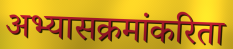
अभ्यासक्रमांकरिता